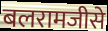
बलरामजीसे